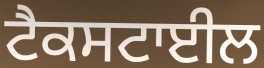
ਟੈਕਸਟਾਈਲ